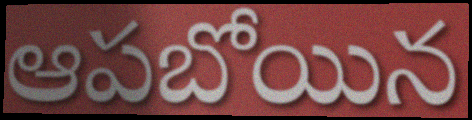
ఆపబోయిన